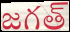
జగత్